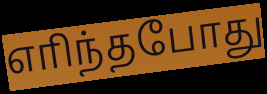
எரிந்தபோது